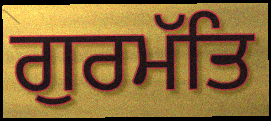
ਗੁਰਮੱਤਿ